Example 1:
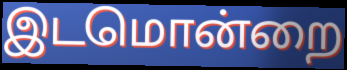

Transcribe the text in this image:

இடமொன்றை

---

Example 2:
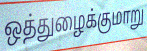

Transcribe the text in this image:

ஒத்துழைக்குமாறு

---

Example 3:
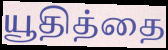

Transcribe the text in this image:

யூதித்தை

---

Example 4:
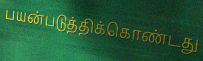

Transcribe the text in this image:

பயன்படுத்திக்கொண்டது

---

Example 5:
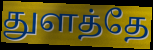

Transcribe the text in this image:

துளத்தே